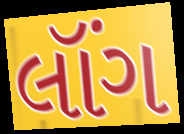
લૉંગ